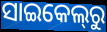
ସାଇକେଲ୍‌ରୁ